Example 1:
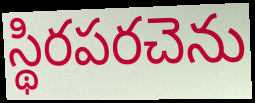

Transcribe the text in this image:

స్థిరపరచెను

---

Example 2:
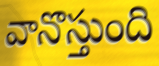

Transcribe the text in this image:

వానొస్తుంది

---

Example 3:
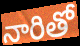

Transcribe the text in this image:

నారితో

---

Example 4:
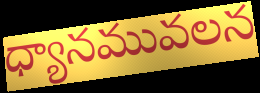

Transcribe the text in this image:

ధ్యానమువలన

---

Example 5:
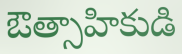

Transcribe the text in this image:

ఔత్సాహికుడి